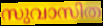
സുവാസിത